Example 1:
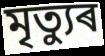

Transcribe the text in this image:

মৃত্যুৰ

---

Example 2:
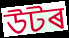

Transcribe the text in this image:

উটৰ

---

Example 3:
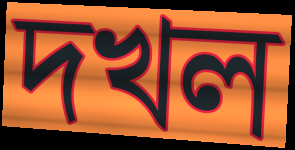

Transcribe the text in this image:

দখল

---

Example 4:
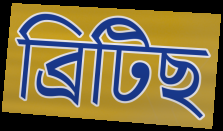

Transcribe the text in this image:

ব্ৰিটিছ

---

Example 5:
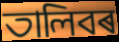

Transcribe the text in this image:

তালিবৰ